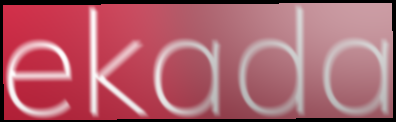
ekada